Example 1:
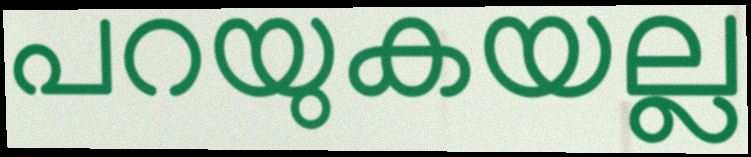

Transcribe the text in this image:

പറയുകയല്ല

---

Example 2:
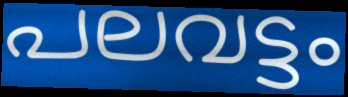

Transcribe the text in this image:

പലവട്ടം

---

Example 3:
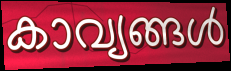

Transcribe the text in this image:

കാവ്യങ്ങൾ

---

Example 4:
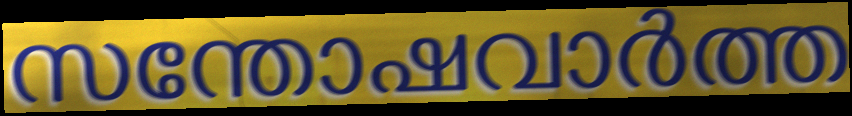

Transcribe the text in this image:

സന്തോഷവാർത്ത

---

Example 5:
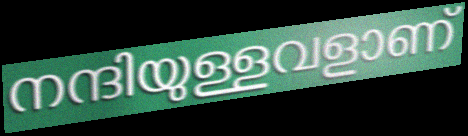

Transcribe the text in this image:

നന്ദിയുള്ളവളാണ്